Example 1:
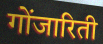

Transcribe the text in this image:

गोंजारिती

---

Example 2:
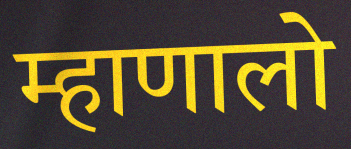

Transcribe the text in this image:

म्हाणालो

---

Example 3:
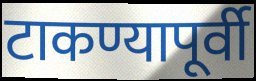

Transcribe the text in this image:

टाकण्यापूर्वी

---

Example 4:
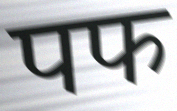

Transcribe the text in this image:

पफ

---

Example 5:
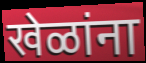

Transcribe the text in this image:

खेळांना